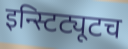
इन्स्टिट्यूटच